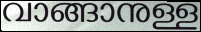
വാങ്ങാനുള്ള